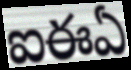
ఐఈఏ